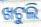
ଖଟୁଲି